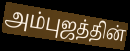
அம்புஜத்தின்